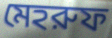
মেহরুফ